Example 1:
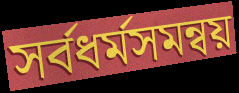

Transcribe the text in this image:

সর্বধর্মসমন্বয়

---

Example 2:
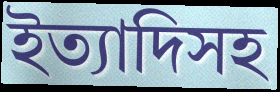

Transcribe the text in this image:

ইত্যাদিসহ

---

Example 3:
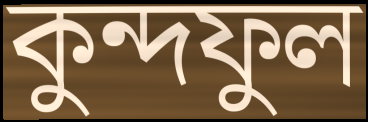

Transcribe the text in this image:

কুন্দফুল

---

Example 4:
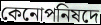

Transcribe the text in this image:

কেনোপনিষদে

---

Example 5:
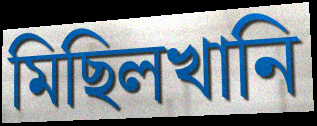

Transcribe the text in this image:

মিছিলখানি